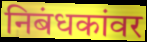
निबंधकांवर